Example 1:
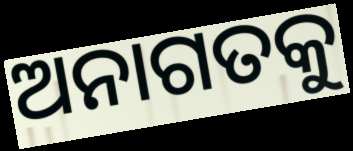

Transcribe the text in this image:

ଅନାଗତକୁ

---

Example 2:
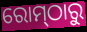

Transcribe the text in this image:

ରୋମ୍‌ଠାରୁ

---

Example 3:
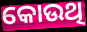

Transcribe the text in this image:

କୋଉଥି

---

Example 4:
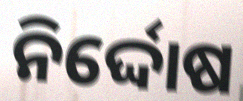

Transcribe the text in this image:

ନିର୍ଦ୍ଦୋଷ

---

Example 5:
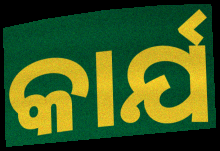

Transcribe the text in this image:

କାର୍ଯ